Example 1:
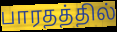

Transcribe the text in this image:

பாரதத்தில்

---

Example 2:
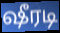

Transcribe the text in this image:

ஷீரடி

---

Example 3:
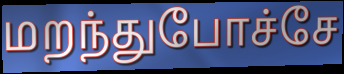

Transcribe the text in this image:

மறந்துபோச்சே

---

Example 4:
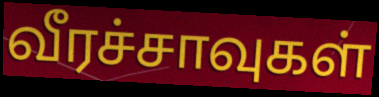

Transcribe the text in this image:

வீரச்சாவுகள்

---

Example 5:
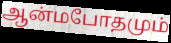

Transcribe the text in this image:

ஆன்மபோதமும்